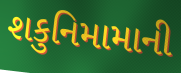
શકુનિમામાની